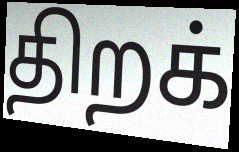
திறக்